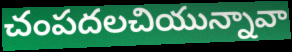
చంపదలచియున్నావా